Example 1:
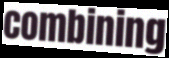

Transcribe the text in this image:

combining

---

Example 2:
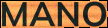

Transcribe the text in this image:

MANO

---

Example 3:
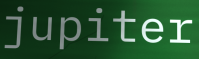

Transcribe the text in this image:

jupiter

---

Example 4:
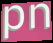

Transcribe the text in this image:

pn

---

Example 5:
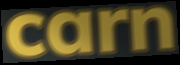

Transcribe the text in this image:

carn